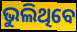
ଭୁଲିଥିବେ